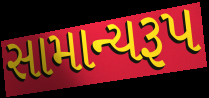
સામાન્યરૂપ